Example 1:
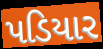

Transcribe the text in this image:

પડિયાર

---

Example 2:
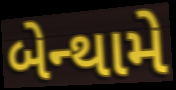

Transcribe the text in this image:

બેન્થામે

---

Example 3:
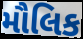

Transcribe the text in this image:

મૌલિક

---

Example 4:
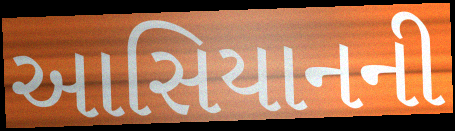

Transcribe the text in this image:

આસિયાનની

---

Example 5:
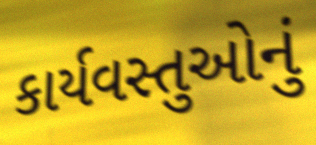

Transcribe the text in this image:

કાર્યવસ્તુઓનું